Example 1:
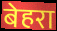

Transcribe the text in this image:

बेहरा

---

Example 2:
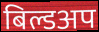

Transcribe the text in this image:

बिल्डअप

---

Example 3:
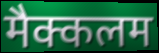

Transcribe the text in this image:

मैक्कलम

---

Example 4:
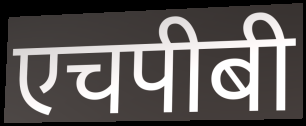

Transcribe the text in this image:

एचपीबी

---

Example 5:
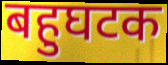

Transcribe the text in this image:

बहुघटक